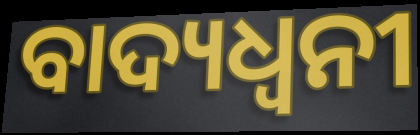
ବାଦ୍ୟଧ୍ୱନୀ